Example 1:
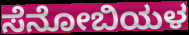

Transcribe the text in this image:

ಸೆನೋಬಿಯಳ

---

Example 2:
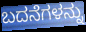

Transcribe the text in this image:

ಬದನೆಗಳನ್ನು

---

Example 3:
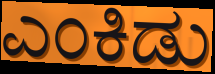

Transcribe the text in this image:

ಎಂಕಿಡು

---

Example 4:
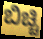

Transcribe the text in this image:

ಬಿಚ್ಚಿ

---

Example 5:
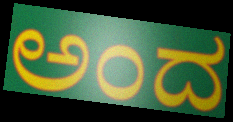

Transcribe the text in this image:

ಅಂದ